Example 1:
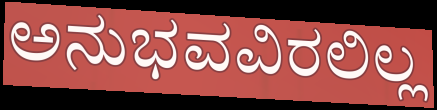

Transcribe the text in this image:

ಅನುಭವವಿರಲಿಲ್ಲ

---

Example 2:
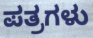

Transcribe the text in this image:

ಪತ್ರಗಳು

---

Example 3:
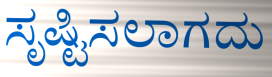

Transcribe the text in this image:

ಸೃಷ್ಟಿಸಲಾಗದು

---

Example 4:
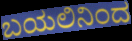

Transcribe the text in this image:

ಬಯಲಿನಿಂದ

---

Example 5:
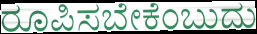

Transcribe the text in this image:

ರೂಪಿಸಬೇಕೆಂಬುದು